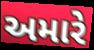
અમારે